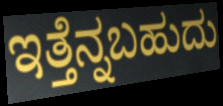
ಇತ್ತೆನ್ನಬಹುದು